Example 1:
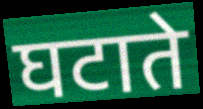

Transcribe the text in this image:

घटाते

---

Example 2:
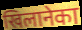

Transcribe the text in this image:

खिलानेका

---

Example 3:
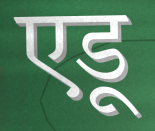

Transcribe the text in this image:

एडू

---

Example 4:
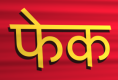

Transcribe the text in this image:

फेक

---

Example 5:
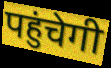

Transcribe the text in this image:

पहुंचेगी